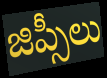
జిప్సీలు